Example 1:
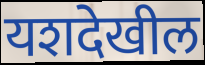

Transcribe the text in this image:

यशदेखील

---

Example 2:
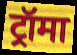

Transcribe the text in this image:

ट्रॉमा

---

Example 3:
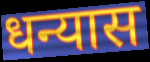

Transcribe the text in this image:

धन्यास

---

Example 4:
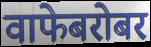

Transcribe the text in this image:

वाफेबरोबर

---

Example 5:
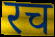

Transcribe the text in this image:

रच